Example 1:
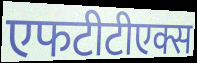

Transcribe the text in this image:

एफटीटीएक्स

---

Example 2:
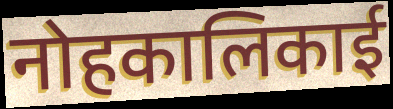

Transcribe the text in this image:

नोहकालिकाई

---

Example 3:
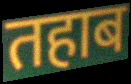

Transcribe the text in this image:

तहाब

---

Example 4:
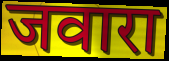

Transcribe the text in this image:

जवारा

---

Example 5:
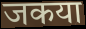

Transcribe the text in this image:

जकया